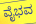
ವೈಭವ